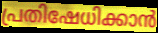
പ്രതിഷേധിക്കാൻ